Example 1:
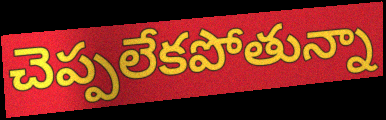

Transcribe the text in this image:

చెప్పలేకపోతున్నా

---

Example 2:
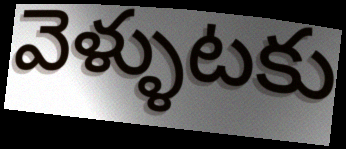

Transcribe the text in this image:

వెళ్ళుటకు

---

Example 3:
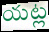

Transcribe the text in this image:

యట్ల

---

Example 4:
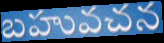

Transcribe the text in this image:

బహువచన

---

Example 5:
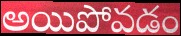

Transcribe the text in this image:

అయిపోవడం